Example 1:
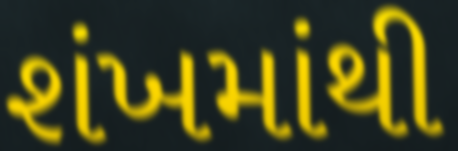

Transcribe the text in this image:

શંખમાંથી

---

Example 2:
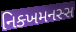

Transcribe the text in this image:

નિક્ખમનસ્સ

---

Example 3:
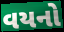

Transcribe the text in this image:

વયનો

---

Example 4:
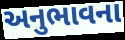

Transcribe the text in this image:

અનુભાવના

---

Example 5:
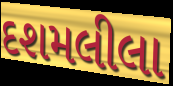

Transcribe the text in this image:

દશમલીલા